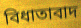
বিধাতাবাদ